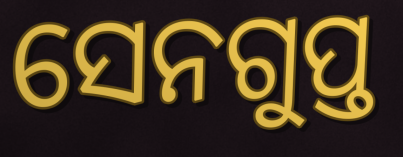
ସେନଗୁପ୍ତ